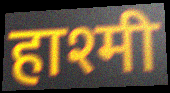
हाश्मी